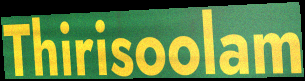
Thirisoolam